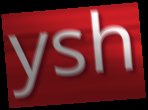
ysh